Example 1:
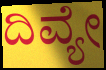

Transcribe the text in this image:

ದಿವ್ಯೇ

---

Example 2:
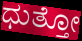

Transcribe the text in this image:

ಧುತ್ತೋ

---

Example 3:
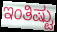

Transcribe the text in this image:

ಇಂತಿಷ್ಟು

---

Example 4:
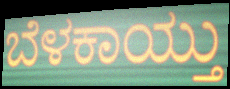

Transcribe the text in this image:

ಬೆಳಕಾಯ್ತು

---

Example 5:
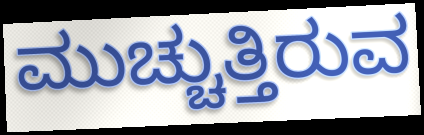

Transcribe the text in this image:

ಮುಚ್ಚುತ್ತಿರುವ